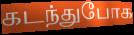
கடந்துபோக